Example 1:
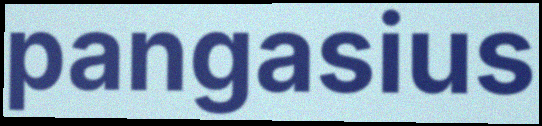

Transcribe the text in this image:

pangasius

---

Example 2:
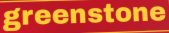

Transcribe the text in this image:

greenstone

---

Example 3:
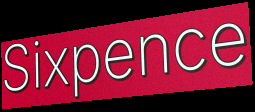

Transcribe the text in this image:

Sixpence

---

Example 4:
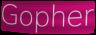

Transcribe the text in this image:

Gopher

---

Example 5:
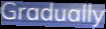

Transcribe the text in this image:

Gradually